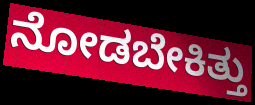
ನೋಡಬೇಕಿತ್ತು